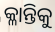
କ୍ଳାନ୍ତିକୁ